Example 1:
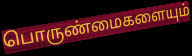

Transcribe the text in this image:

பொருண்மைகளையும்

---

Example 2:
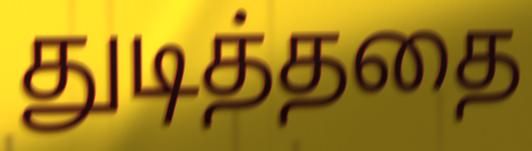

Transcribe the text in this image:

துடித்ததை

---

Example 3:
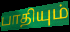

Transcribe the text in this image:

பாதியும்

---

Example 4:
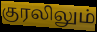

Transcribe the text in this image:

குரலிலும்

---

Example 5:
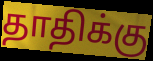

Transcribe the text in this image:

தாதிக்கு